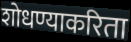
शोधण्याकरिता